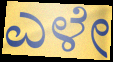
ಎಳೇ